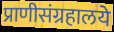
प्राणीसंग्रहालये